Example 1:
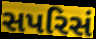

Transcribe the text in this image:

સપરિસં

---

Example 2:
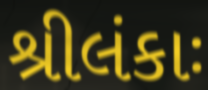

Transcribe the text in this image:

શ્રીલંકાઃ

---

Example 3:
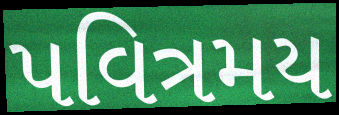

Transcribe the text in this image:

પવિત્રમય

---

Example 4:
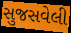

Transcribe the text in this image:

સુજસવેલી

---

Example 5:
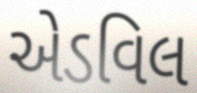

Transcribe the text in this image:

એડવિલ